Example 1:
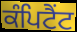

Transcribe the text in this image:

ਕੰਪਿਟੈਂਟ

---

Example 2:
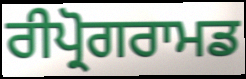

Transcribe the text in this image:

ਰੀਪ੍ਰੋਗਰਾਮਡ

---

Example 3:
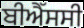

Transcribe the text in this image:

ਬੀਐੱਸਸੀ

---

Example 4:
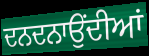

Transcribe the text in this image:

ਦਨਦਨਾਉਂਦੀਆਂ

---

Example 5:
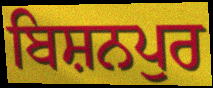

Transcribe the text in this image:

ਬਿਸ਼ਨਪੁਰ